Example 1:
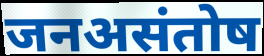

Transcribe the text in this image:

जनअसंतोष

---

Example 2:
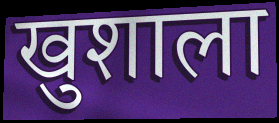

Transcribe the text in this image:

खुशाला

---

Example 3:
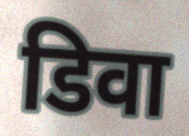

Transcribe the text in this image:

डिवा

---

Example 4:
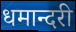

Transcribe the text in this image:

धमान्दरी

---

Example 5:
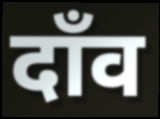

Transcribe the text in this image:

दाँव